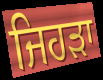
ਜਿਹੜਾ